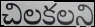
చిలకలని